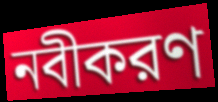
নবীকরণ